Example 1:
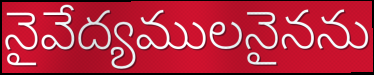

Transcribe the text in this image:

నైవేద్యములనైనను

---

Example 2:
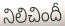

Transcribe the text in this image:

నిలిచిందీ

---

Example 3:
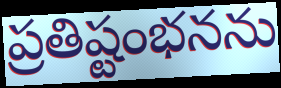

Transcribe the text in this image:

ప్రతిష్టంభనను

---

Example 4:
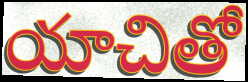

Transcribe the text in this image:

యాచితో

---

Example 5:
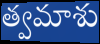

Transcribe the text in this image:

త్వమాశు